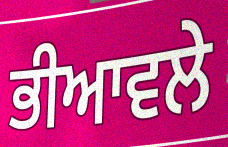
ਭੀਆਵਲੇ